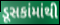
ડૂસકાંમાંથી